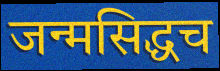
जन्मसिद्धच